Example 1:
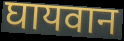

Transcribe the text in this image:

घायवान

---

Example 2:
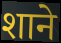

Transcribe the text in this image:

शाने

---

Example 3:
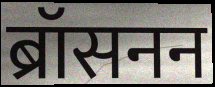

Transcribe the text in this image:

ब्रॉसनन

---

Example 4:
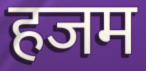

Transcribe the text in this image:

हजम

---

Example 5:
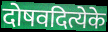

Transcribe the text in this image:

दोषवदित्येके